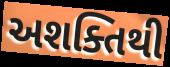
અશક્તિથી